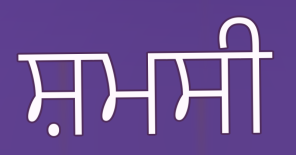
ਸ਼ਮਸੀ